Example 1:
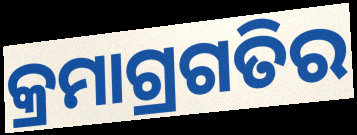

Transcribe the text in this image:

କ୍ରମାଗ୍ରଗତିର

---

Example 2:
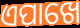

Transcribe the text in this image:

ଏପାଖେ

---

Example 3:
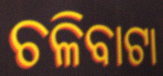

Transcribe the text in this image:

ଚଳିବାଟା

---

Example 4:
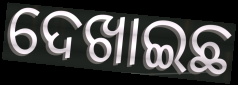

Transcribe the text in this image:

ଦେଖାଇଛ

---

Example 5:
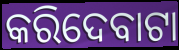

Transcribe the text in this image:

କରିଦେବାଟା